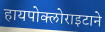
हायपोक्लोराइटाने